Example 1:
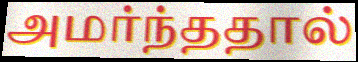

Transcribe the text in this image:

அமர்ந்ததால்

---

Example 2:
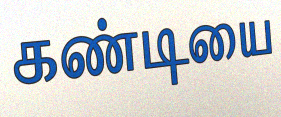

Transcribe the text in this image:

கண்டியை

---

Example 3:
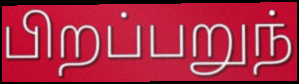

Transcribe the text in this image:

பிறப்பறுந்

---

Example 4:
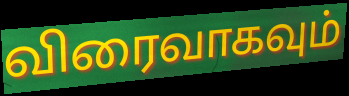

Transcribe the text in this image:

விரைவாகவும்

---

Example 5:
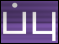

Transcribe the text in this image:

ப்பு